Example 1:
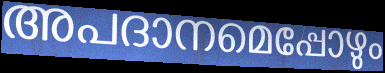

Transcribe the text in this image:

അപദാനമെപ്പോഴും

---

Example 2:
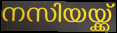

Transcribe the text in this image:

നസിയയ്ക്ക്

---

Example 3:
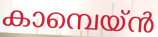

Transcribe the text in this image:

കാമ്പെയ്ൻ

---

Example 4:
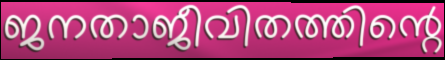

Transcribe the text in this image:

ജനതാജീവിതത്തിന്റെ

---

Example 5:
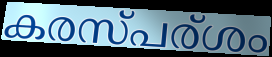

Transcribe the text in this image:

കരസ്പര്ശം